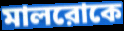
মালরোকে